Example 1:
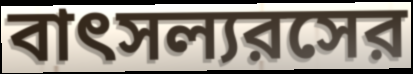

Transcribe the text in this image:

বাৎসল্যরসের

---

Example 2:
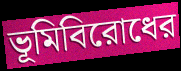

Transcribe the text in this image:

ভূমিবিরোধের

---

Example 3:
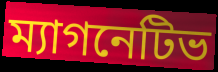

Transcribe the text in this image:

ম্যাগনেটিভ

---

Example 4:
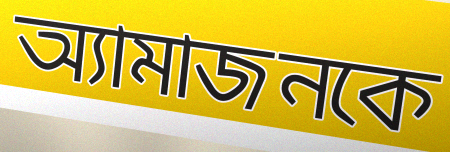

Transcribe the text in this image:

অ্যামাজনকে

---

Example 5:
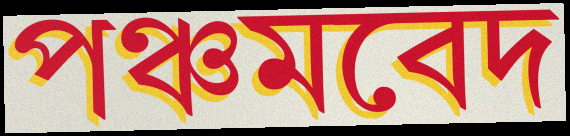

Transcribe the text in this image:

পঞ্চমবেদ